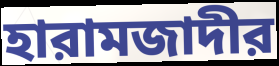
হারামজাদীর